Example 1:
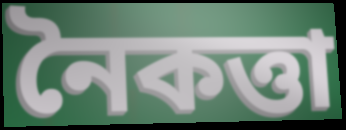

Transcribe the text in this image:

নৈকত্তা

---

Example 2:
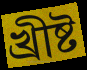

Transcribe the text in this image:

খ্ৰীষ্ট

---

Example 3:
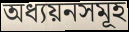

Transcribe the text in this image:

অধ্যয়নসমূহ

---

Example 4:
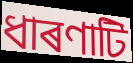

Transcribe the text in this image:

ধাৰণাটি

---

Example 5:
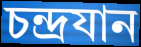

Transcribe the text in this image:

চন্দ্ৰযান